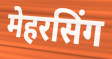
मेहरसिंग